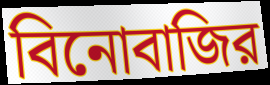
বিনোবাজির